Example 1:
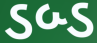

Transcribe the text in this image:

ડબ્ડ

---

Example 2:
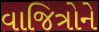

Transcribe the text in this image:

વાજિત્રોને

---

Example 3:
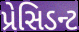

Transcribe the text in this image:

પ્રેસિડન્ટ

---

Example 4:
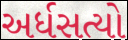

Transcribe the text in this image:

અર્ધસત્યો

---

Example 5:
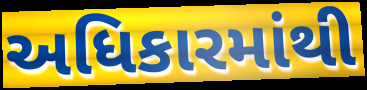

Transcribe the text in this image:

અધિકારમાંથી